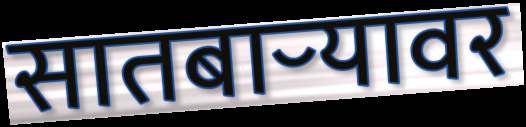
सातबाऱ्यावर